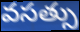
వసత్సు